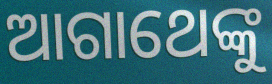
ଆଗାଥେଙ୍କୁ